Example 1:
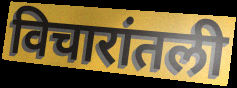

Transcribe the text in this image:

विचारांतली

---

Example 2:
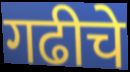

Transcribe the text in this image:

गढीचे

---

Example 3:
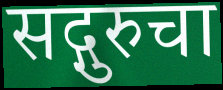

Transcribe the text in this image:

सद्गुरुचा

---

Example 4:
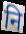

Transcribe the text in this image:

नि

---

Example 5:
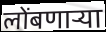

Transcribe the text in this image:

लोंबणार्‍या